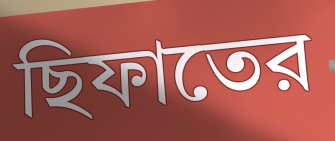
ছিফাতের